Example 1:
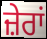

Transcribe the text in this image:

ਜ਼ੇਰਾਂ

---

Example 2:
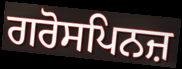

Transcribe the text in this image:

ਗਰੋਸਪਿਨਜ਼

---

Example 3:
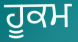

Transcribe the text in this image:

ਹੂਕਮ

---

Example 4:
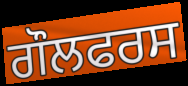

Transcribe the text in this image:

ਗੌਲਫਰਸ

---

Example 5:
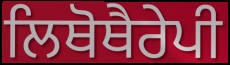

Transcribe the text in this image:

ਲਿਥੋਥੈਰੇਪੀ